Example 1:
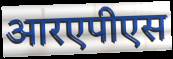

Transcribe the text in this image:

आरएपीएस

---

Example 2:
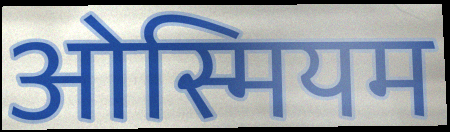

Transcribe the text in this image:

ओस्मियम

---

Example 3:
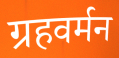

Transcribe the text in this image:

ग्रहवर्मन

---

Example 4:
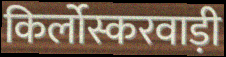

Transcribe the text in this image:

किर्लोस्करवाड़ी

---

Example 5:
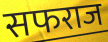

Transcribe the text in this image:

सफराज